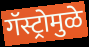
गॅस्ट्रोमुळे